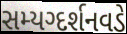
સમ્યગ્દર્શનવડે